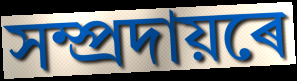
সম্প্ৰদায়ৰে